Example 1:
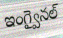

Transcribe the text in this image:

ఇంగ్వైనల్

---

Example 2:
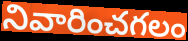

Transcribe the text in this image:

నివారించగలం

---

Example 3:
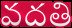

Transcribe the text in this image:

వదతి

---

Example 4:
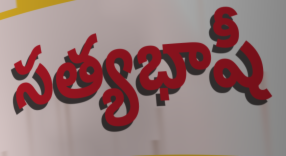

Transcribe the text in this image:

సత్యభాషీ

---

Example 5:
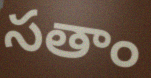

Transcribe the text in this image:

సతాం